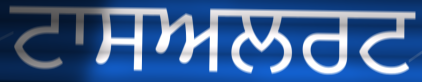
ਟਾਸਅਲਰਟ